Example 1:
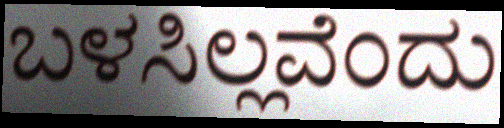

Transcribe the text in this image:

ಬಳಸಿಲ್ಲವೆಂದು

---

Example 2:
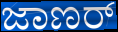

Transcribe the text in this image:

ಜಾಣರ್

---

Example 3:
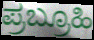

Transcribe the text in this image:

ಪ್ರಬ್ರೂಹಿ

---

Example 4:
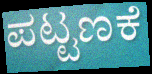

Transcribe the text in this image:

ಪಟ್ಟಣಕೆ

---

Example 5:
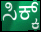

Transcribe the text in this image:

ಸಿಕ್ಕ್